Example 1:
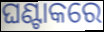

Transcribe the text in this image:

ଘଣ୍ଟାକରେ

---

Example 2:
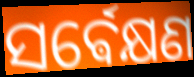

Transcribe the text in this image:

ସର୍ଵେକ୍ଷଣ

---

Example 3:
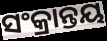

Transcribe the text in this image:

ସଂକ୍ରାନ୍ତୟ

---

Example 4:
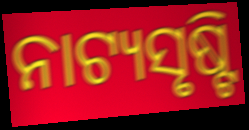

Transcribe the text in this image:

ନାଟ୍ୟସୃଷ୍ଟି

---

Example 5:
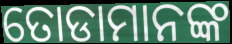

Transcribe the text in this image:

ତୋଡାମାନଙ୍କ